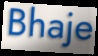
Bhaje